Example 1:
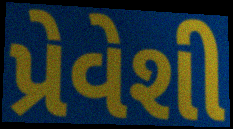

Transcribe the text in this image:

પ્રેવેશી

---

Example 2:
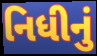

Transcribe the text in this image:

નિધીનું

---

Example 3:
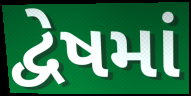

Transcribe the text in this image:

દ્વેષમાં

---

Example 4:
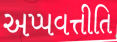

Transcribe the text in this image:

અપ્પવત્તીતિ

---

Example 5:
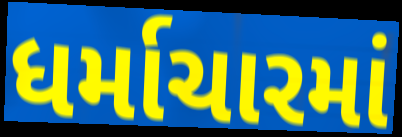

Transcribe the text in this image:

ધર્માચારમાં